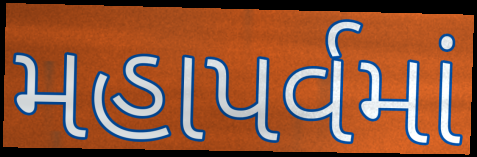
મહાપર્વમાં